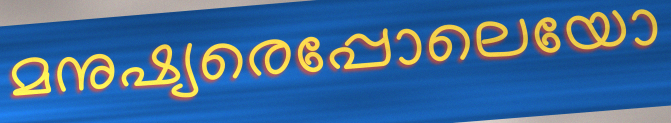
മനുഷ്യരെപ്പോലെയോ